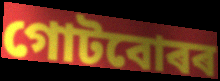
গোটবোৰৰ